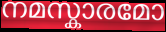
നമസ്കാരമോ